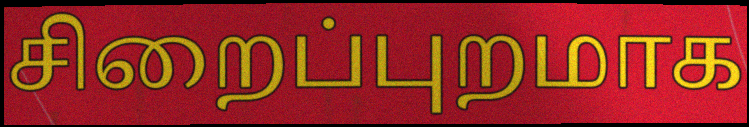
சிறைப்புறமாக